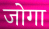
जोगा